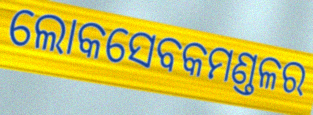
ଲୋକସେବକମଣ୍ଡଳର